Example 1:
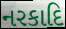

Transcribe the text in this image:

નરકાદિ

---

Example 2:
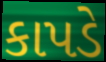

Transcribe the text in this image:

કાપડે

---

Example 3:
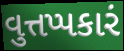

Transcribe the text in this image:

વુત્તપ્પકારં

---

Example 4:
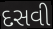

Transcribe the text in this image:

દસવી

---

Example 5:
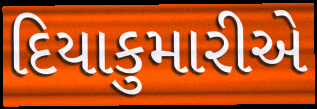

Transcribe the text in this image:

દિયાકુમારીએ